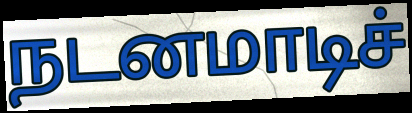
நடனமாடிச்